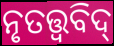
ନୃତତ୍ତ୍ଵବିଦ୍